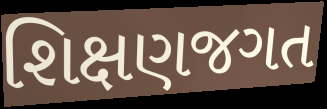
શિક્ષણજગત